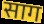
साग